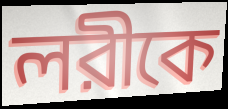
লরীকে